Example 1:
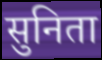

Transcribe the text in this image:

सुनिता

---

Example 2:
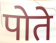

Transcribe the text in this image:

पोते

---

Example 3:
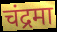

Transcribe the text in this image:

चंद्रमा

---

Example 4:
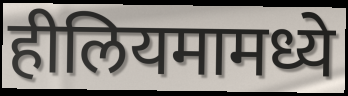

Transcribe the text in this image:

हीलियमामध्ये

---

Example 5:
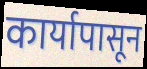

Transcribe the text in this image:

कार्यापासून